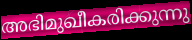
അഭിമുഖീകരിക്കുന്നു